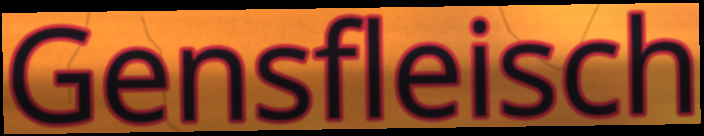
Gensfleisch